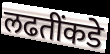
लढतींकडे